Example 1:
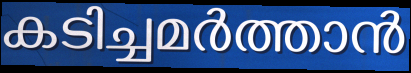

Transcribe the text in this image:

കടിച്ചമർത്താൻ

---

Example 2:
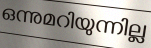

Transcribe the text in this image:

ഒന്നുമറിയുന്നില്ല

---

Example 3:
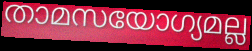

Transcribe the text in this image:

താമസയോഗ്യമല്ല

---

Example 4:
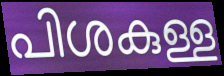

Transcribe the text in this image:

പിശകുള്ള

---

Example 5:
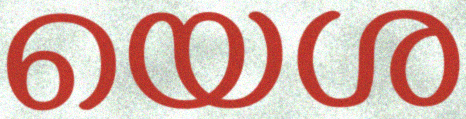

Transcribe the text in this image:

യെശ